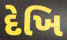
દેખિ